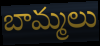
బామ్మలు